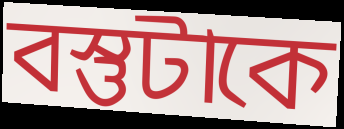
বস্তুটাকে